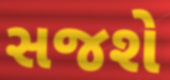
સજશે